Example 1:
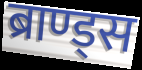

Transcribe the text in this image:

ब्राण्‍ड्स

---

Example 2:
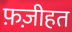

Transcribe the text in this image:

फ़ज़ीहत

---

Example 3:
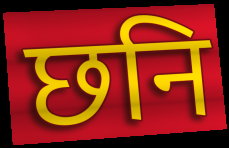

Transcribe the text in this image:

छनि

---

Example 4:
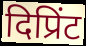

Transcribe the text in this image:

दिप्रिंट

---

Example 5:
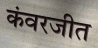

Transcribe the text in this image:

कंवरजीत